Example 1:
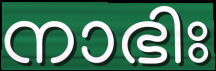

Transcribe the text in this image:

നാഭിഃ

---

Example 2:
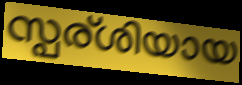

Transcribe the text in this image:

സ്പര്ശിയായ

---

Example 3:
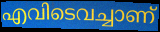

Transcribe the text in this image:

എവിടെവച്ചാണ്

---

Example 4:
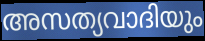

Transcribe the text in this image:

അസത്യവാദിയും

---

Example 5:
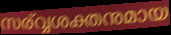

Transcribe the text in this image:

സര്വ്വശക്തനുമായ